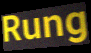
Rung